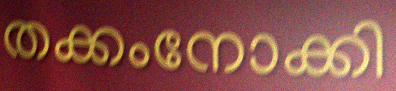
തക്കംനോക്കി